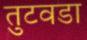
तुटवडा